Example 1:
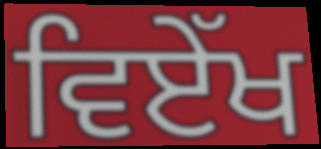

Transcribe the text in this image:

ਵਿਏੱਖ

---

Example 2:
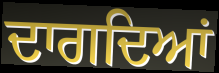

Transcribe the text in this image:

ਦਾਗਦਿਆਂ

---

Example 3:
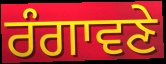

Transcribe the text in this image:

ਰੰਗਾਵਣੇ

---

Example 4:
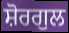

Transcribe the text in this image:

ਸ਼ੋਰਗੁਲ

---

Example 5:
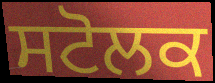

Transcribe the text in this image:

ਸਟੋਲਕ